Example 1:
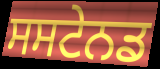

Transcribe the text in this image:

ਸਸਟੇਨਡ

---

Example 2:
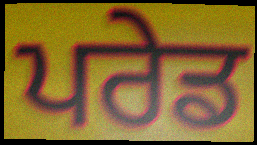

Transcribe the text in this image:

ਪਰੇਡ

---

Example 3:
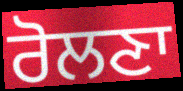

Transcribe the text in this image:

ਰੋਲਣਾ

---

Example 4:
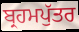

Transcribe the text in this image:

ਬ੍ਰਹਮਪੁੱਤਰ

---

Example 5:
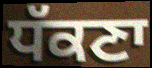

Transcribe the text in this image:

ਧੱਕਣਾ